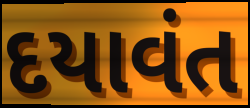
દયાવંત